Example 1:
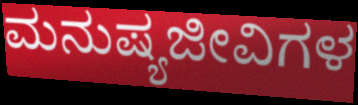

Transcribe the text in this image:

ಮನುಷ್ಯಜೀವಿಗಳ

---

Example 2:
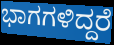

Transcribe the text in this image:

ಭಾಗಗಳಿದ್ದರೆ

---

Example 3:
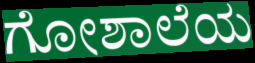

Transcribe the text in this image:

ಗೋಶಾಲೆಯ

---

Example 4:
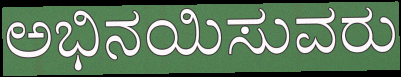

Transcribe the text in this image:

ಅಭಿನಯಿಸುವರು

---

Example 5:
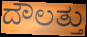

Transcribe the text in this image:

ದೌಲತ್ತು